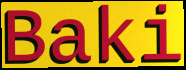
Baki